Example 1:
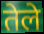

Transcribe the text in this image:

तेले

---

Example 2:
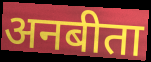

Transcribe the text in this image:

अनबीता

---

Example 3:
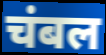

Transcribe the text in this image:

चंबल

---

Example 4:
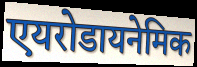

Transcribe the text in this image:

एयरोडायनेमिक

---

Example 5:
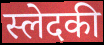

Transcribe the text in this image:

स्लेदकी